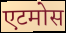
एटमोस